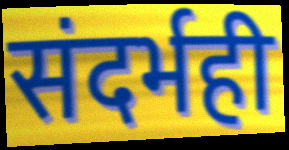
संदर्भही